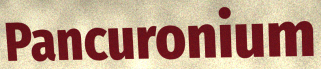
Pancuronium